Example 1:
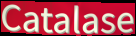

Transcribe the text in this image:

Catalase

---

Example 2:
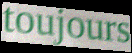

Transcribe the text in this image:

toujours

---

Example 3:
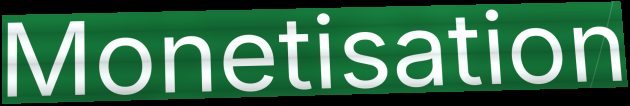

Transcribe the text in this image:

Monetisation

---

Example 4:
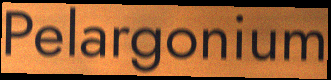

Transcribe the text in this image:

Pelargonium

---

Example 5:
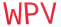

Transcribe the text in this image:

WPV